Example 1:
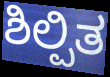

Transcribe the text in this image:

ಶಿಲ್ಪಿತ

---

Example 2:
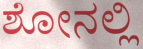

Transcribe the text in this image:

ಶೋನಲ್ಲಿ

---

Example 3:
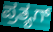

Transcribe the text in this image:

ಪ್ರತ್ಯಗ್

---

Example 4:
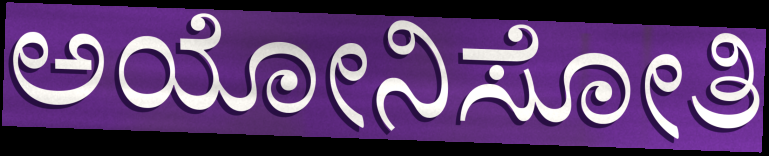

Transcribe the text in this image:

ಅಯೋನಿಸೋತಿ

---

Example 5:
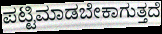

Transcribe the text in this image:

ಪಟ್ಟಿಮಾಡಬೇಕಾಗುತ್ತದೆ